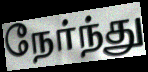
நேர்ந்து